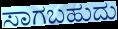
ಸಾಗಬಹುದು